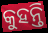
କୁହନ୍ତି